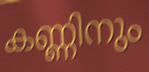
കണ്ണിനും